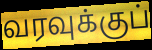
வரவுக்குப்